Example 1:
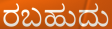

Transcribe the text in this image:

ರಬಹುದು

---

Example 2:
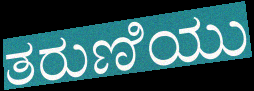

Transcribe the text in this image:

ತರುಣಿಯು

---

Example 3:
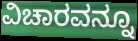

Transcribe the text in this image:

ವಿಚಾರವನ್ನೂ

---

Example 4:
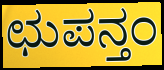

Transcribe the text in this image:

ಛುಪನ್ತಂ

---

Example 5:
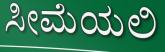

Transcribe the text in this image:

ಸೀಮೆಯಲಿ